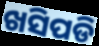
ଖସିପଡି